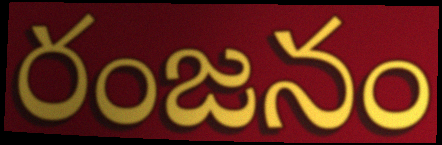
రంజనం